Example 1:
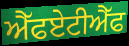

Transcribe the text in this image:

ਐੱਫਏਟੀਐੱਫ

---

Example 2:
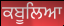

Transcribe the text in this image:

ਕਬੂਲਿਆ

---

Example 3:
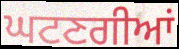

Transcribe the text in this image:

ਘਟਣਗੀਆਂ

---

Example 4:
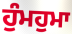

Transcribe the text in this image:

ਹੁੰਮਹੁਮਾ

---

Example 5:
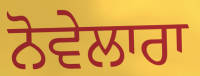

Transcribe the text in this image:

ਨੋਵੇਲਾਰਾ